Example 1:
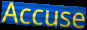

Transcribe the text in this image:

Accuse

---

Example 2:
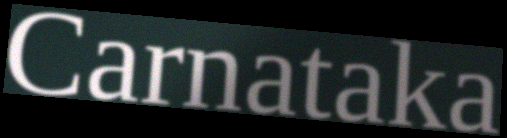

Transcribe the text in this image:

Carnataka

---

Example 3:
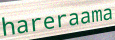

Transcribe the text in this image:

hareraama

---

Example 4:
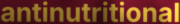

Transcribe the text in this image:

antinutritional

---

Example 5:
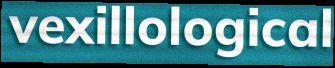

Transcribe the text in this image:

vexillological